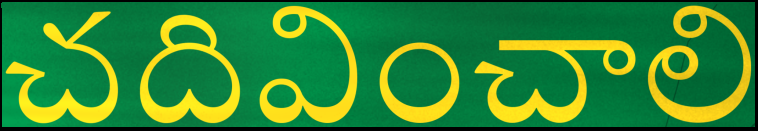
చదివించాలి